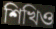
শিখিও